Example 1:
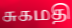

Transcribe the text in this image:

சுகமதி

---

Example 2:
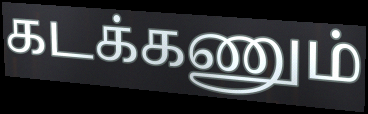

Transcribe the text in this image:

கடக்கணும்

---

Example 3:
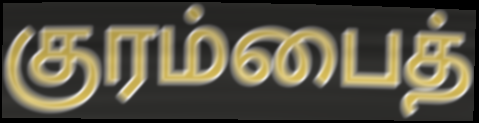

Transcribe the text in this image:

குரம்பைத்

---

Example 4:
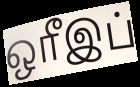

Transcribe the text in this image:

ஒரீஇப்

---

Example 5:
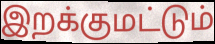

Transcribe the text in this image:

இறக்குமட்டும்